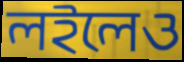
লইলেও